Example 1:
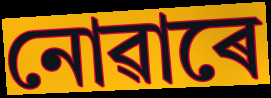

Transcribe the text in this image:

নোৱাৰে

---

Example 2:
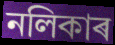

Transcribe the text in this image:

নলিকাৰ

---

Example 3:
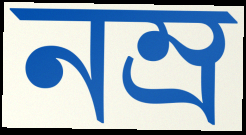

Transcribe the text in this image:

নম্ৰ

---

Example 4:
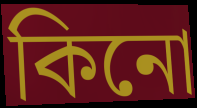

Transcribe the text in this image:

কিনো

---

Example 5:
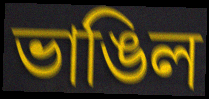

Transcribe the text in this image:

ভাঙিল